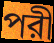
পরী